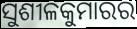
ସୁଶୀଳକୁମାରର